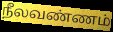
நீலவண்ணம்